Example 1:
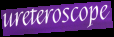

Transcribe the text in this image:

ureteroscope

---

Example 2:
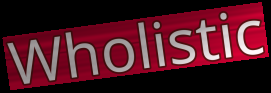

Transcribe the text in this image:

Wholistic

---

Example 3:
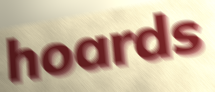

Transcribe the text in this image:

hoards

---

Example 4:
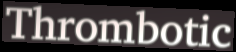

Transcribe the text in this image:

Thrombotic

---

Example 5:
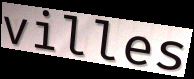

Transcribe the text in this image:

villes